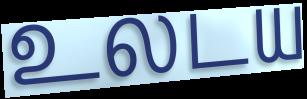
உலடய